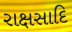
રાક્ષસાદિ